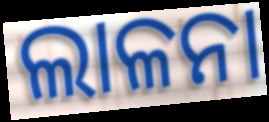
ଲାଳନା